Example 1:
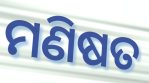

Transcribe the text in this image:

ମଣିଷତ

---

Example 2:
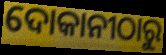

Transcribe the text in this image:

ଦୋକାନୀଠାରୁ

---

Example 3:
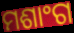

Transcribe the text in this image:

ମଶାଂଗ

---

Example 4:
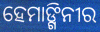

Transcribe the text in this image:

ହେମାଙ୍ଗିନୀର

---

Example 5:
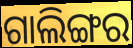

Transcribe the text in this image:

ଗାଲିଙ୍ଗର